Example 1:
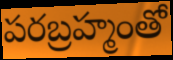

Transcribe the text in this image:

పరబ్రహ్మంతో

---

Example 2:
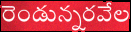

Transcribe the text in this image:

రెండున్నరవేల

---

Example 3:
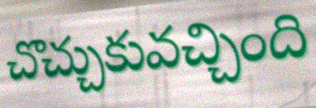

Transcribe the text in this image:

చొచ్చుకువచ్చింది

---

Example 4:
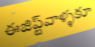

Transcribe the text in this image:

ఈజిప్ట్‌వాళ్ళకూ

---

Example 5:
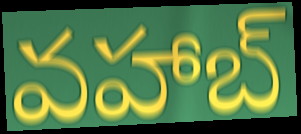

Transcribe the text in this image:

వహాబ్